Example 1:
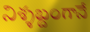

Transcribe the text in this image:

నిశ్శబ్దంగానే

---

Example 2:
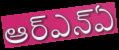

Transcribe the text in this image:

ఆర్ఎన్ఏ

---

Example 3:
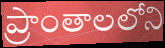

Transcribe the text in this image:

ప్రాంతాలలోని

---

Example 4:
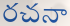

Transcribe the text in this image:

రచనా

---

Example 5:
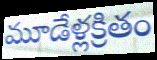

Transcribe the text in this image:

మూడేళ్లక్రితం